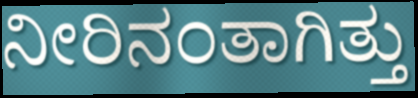
ನೀರಿನಂತಾಗಿತ್ತು